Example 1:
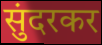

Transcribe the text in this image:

सुंदरकर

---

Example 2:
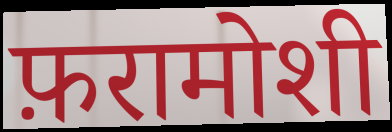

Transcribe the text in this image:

फ़रामोशी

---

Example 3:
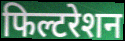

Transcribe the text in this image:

फिल्टरेशन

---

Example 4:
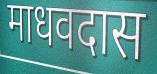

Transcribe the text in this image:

माधवदास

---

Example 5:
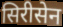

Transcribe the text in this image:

सिरीसेन